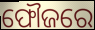
ଫୌଜରେ